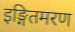
इङ्गितमरण